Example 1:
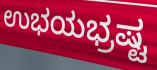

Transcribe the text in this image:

ಉಭಯಭ್ರಷ್ಟ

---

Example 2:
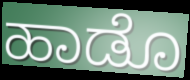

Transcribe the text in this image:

ಹಾಡೊ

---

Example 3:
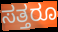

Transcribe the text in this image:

ಸತ್ತರೂ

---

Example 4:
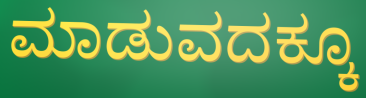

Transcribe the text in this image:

ಮಾಡುವದಕ್ಕೂ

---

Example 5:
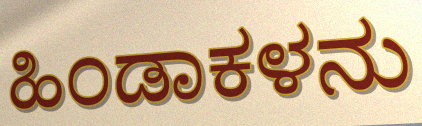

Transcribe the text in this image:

ಹಿಂಡಾಕಳನು